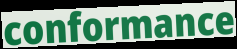
conformance